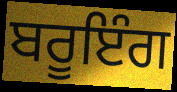
ਬਰੂਇੰਗ